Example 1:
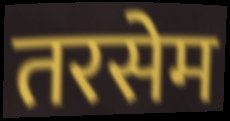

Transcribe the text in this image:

तरसेम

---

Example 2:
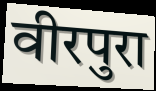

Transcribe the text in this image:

वीरपुरा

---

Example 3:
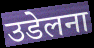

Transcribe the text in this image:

उडेलना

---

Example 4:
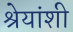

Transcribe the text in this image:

श्रेयांशी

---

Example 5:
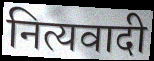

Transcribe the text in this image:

नित्यवादी